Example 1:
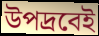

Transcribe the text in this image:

উপদ্রবেই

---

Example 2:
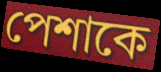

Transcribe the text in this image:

পেশাকে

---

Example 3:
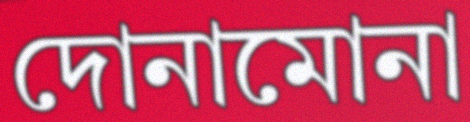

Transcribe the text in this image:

দোনামোনা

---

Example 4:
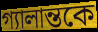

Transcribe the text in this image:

গ্যালান্তকে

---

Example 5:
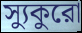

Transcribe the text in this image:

স্যুকুরো